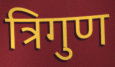
त्रिगुण